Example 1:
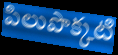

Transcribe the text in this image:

పిలుపొక్కటి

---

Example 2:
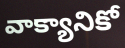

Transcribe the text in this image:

వాక్యానికో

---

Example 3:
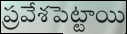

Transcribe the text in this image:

ప్రవేశపెట్టాయి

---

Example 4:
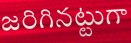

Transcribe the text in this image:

జరిగినట్టుగా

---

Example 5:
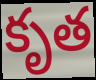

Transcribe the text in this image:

కృత